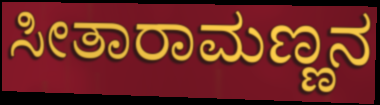
ಸೀತಾರಾಮಣ್ಣನ